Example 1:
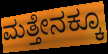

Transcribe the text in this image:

ಮತ್ತೇನಕ್ಕೂ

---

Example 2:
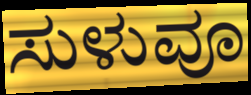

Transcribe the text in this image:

ಸುಳುವೂ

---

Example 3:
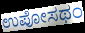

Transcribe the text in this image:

ಉಪೋಸಥಂ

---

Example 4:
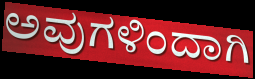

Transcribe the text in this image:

ಅವುಗಳಿಂದಾಗಿ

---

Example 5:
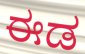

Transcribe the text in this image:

ಈಡ